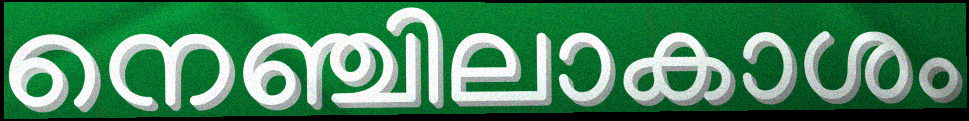
നെഞ്ചിലാകാശം